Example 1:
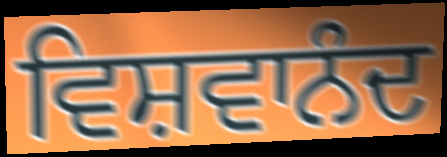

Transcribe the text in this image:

ਵਿਸ਼ਵਾਨੰਦ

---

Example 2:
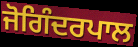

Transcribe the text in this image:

ਜੋਗਿੰਦਰਪਾਲ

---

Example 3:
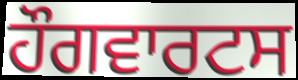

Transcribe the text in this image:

ਹੌਗਵਾਰਟਸ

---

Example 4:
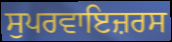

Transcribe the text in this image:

ਸੁਪਰਵਾਇਜ਼ਰਸ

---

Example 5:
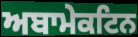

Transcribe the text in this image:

ਅਬਾਮੇਕਟਿਨ